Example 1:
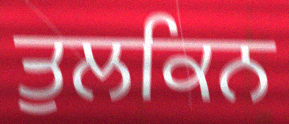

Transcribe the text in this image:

ਤੁਲਕਿਨ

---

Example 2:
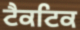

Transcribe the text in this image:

ਟੈਕਟਿਕ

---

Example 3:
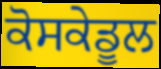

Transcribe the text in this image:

ਕੋਸਕੇਡੂਲ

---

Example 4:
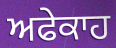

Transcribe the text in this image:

ਅਫੇਕਾਹ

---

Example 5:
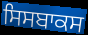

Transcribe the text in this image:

ਸਿਸਬਾਕਸ